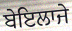
ਬੇਇਲਾਜੇ